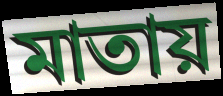
মাতায়